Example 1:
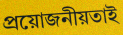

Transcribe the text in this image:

প্রয়োজনীয়তাই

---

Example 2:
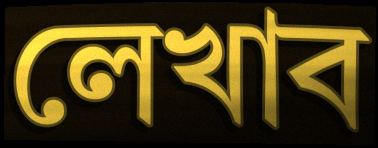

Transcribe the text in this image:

লেখাব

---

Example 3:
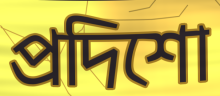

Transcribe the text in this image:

প্রদিশো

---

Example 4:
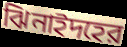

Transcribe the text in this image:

ঝিনাইদহের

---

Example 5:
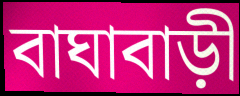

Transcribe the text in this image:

বাঘাবাড়ী